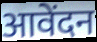
आवेंदन